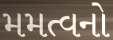
મમત્વનો